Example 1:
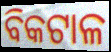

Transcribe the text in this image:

ବିକଟାଳ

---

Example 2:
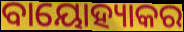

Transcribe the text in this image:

ବାୟୋହ୍ୟାକର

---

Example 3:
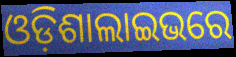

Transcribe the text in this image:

ଓଡ଼ିଶାଲାଇଭରେ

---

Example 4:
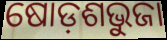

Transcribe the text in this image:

ଷୋଡ଼ଶଭୁଜା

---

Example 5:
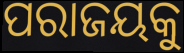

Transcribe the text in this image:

ପରାଜୟକୁ